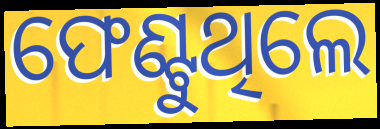
ଫେଣ୍ଟୁଥିଲେ